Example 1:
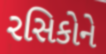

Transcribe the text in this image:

રસિકોને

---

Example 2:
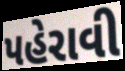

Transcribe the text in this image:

પહેરાવી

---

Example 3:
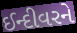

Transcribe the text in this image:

ઈન્દીવરને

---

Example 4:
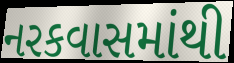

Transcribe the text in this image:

નરકવાસમાંથી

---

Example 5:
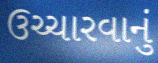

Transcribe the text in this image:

ઉચ્ચારવાનું